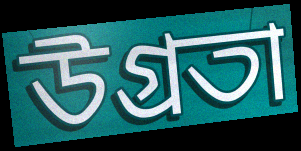
উগ্রতা